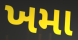
ખમા